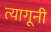
त्यागूनी